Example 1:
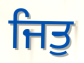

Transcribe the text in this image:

ਜਿਤੁ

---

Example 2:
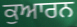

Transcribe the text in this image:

ਕੁਆਰਨ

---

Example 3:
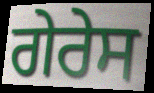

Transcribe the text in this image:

ਗੇਰੇਸ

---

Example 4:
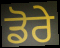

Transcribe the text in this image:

ਡੋਰੇ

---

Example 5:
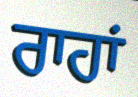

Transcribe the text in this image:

ਰਾਹਾਂ